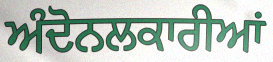
ਅੰਦੋਨਲਕਾਰੀਆਂ